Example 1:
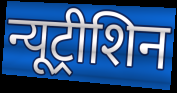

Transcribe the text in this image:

न्यूट्रीशिन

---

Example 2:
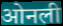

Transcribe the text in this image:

ओनली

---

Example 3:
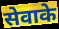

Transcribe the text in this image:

सेवाके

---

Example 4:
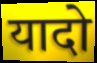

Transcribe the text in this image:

यादो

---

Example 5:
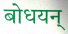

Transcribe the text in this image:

बोधयन्